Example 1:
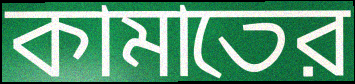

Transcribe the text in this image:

কামাতের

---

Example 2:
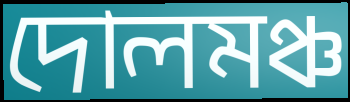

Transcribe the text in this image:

দোলমঞ্চ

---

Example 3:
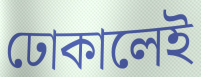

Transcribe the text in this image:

ঢোকালেই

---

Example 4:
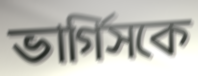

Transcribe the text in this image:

ভার্গিসকে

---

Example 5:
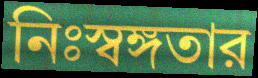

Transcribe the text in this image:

নিঃস্বঙ্গতার